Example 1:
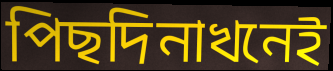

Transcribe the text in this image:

পিছদিনাখনেই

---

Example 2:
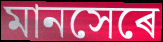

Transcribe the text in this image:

মানসেৰে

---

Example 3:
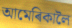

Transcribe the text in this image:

আমেৰিকালৈ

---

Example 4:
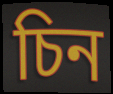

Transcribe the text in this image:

চিন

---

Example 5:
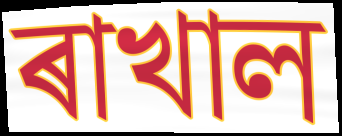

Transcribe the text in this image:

ৰাখাল